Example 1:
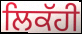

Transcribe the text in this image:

ਲਿਕੱਹੀ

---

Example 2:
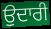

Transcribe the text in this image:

ਉਦਾਰੀ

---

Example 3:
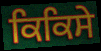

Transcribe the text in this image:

ਕਿਕਿਸੇ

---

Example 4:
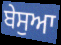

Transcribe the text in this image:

ਬੇਸੁਆ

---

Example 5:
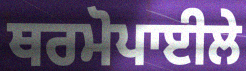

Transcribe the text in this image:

ਥਰਮੋਪਾਈਲੇ